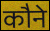
कौने